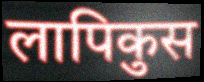
लापिकुस